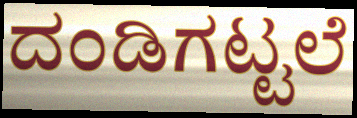
ದಂಡಿಗಟ್ಟಲೆ